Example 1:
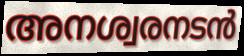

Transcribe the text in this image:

അനശ്വരനടൻ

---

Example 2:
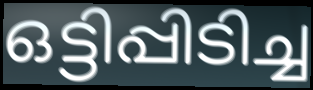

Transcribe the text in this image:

ഒട്ടിപ്പിടിച്ച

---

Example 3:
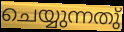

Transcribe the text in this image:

ചെയ്യുന്നതു്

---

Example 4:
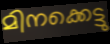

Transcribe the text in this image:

മിനക്കെട്ടു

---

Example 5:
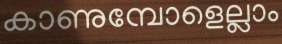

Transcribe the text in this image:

കാണുമ്പോളെല്ലാം